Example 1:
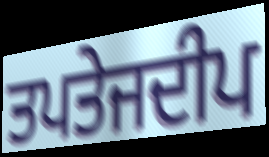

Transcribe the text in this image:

ਤਪਤੇਜਦੀਪ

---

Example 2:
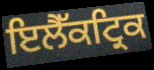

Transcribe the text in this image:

ਇਲੈੱਕਟ੍ਰਿਕ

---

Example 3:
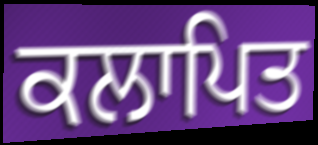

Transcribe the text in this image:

ਕਲਾਪਿਤ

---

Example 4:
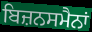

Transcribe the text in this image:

ਬਿਜ਼ਨਸਮੈਨਾਂ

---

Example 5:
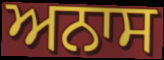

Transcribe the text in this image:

ਅਨਾਸ